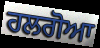
ਹਲਗੋਆ